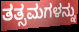
ತತ್ಸಮಗಳನ್ನು